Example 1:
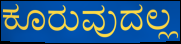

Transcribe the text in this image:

ಕೂರುವುದಲ್ಲ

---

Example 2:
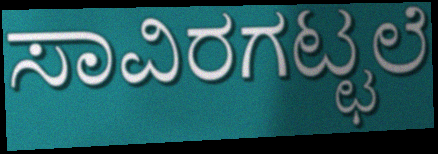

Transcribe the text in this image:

ಸಾವಿರಗಟ್ಟಲೆ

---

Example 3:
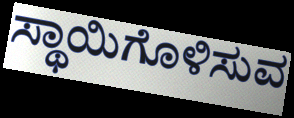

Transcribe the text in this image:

ಸ್ಥಾಯಿಗೊಳಿಸುವ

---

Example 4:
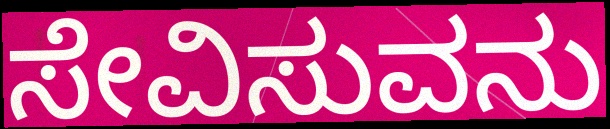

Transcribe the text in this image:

ಸೇವಿಸುವನು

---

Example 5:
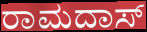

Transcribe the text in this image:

ರಾಮದಾಸ್